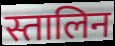
स्तालिन